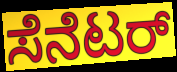
ಸೆನೆಟರ್